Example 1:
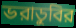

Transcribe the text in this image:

ভরাডুবির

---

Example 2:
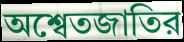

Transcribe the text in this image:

অশ্বেতজাতির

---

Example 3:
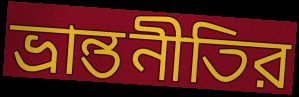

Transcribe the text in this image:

ভ্রান্তনীতির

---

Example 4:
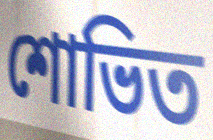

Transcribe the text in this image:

শোভিত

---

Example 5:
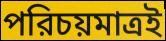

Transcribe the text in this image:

পরিচয়মাত্রই